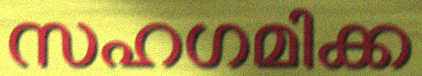
സഹഗമിക്ക